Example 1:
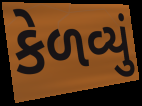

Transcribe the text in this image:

કેળવ્યું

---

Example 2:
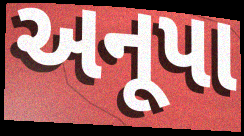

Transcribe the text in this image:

અનૂપા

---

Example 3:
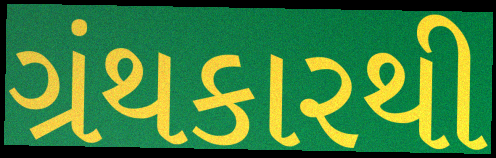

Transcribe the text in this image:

ગ્રંથકારથી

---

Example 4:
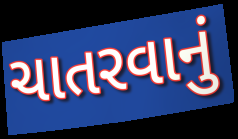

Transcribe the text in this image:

ચાતરવાનું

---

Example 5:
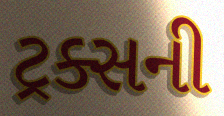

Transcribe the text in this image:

ટ્રક્સની